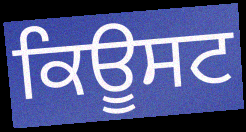
ਕਿਊਸਟ